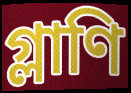
গ্লাণি